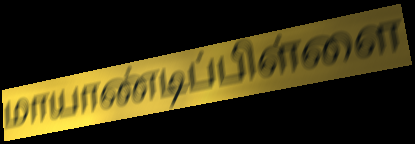
மாயாண்டிப்பிள்ளை